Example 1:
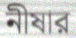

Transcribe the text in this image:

নীষার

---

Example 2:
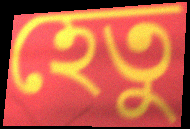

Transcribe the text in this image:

হেতু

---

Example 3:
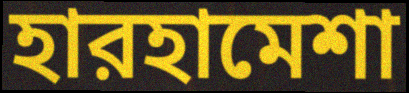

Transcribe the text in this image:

হারহামেশা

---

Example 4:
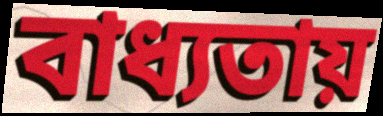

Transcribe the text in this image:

বাধ্যতায়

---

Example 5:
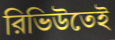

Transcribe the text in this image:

রিভিউতেই